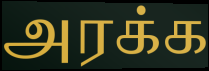
அரக்க